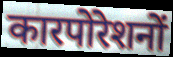
कारपोरेशनों